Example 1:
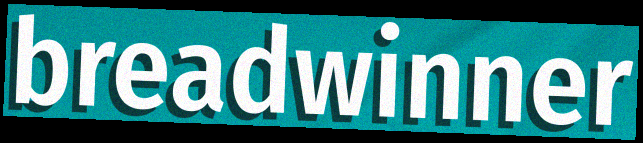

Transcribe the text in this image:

breadwinner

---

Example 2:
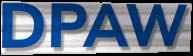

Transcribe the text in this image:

DPAW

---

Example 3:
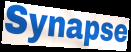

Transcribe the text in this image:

Synapse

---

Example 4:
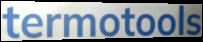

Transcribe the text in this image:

termotools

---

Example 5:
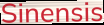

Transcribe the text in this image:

Sinensis